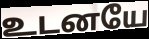
உடனயே